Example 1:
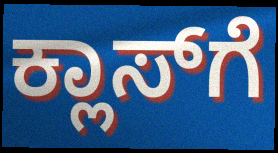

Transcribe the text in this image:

ಕ್ಲಾಸ್‍ಗೆ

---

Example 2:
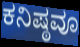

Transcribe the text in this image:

ಕನಿಷ್ಠವೂ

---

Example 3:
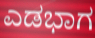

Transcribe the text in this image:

ಎಡಭಾಗ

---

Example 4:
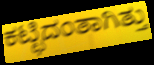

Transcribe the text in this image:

ಕಟ್ಟಿದಂತಾಗಿತ್ತು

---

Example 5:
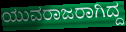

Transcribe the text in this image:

ಯುವರಾಜರಾಗಿದ್ದ